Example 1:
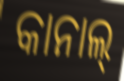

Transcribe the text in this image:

କାନାଲ୍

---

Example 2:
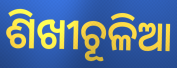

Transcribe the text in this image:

ଶିଖୀଚୂଳିଆ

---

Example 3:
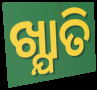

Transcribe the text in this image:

ଖ୍ଯାତି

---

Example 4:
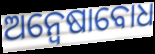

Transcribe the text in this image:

ଅନ୍ୱେଷାବୋଧ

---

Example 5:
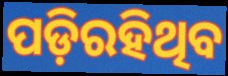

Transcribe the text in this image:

ପଡ଼ିରହିଥିବ